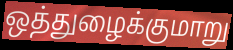
ஒத்துழைக்குமாறு